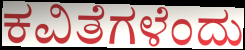
ಕವಿತೆಗಳೆಂದು